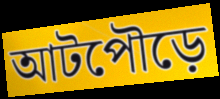
আটপৌড়ে